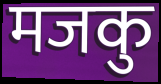
मजकु